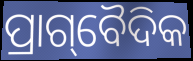
ପ୍ରାଗ୍‌ବୈଦିକ